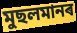
মুছলমানৰ